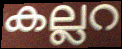
കല്ലറ